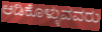
ಆಡಿಕೊಳ್ಳುವವರು